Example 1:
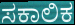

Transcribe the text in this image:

ಸಕಾಲಿಕ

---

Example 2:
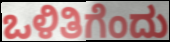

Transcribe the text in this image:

ಒಳಿತಿಗೆಂದು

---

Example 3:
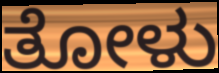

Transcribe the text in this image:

ತೋಳು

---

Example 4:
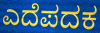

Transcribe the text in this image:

ಎದೆಪದಕ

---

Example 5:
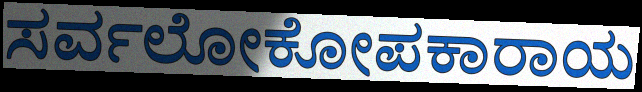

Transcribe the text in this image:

ಸರ್ವಲೋಕೋಪಕಾರಾಯ